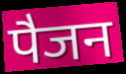
पैजन